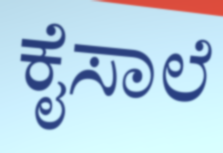
ಕೈಸಾಲೆ